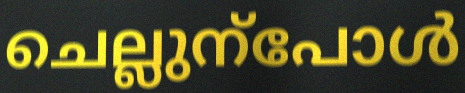
ചെല്ലുന്പോൾ